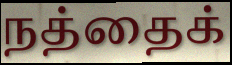
நத்தைக்